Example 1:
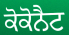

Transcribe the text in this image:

ਕੋਕੋਨੈਟ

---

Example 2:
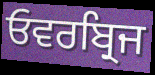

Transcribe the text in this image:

ਓਵਰਬ੍ਰਿਜ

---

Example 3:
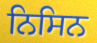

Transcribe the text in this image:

ਨਿਸਿਨ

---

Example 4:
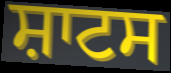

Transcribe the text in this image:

ਸ਼ਾਟਸ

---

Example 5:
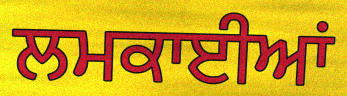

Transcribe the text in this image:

ਲਮਕਾਈਆਂ